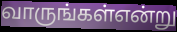
வாருங்கள்என்று